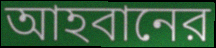
আহবানের